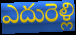
ఎదురెళ్లి